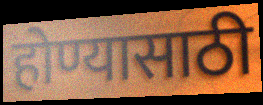
होण्यासाठी